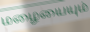
மழையையும்